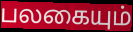
பலகையும்